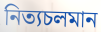
নিত্যচলমান